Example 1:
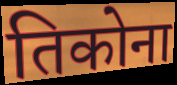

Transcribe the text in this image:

तिकोना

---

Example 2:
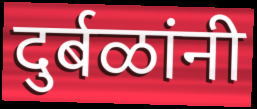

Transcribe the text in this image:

दुर्बळांनी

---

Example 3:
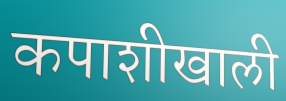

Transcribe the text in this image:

कपाशीखाली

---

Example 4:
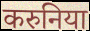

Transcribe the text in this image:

करुनिया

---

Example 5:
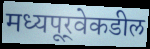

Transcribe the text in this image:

मध्यपूर्वेकडील